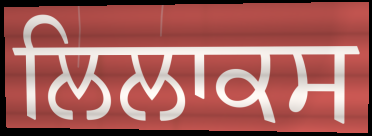
ਲਿਲਾਕਸ